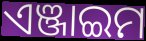
ଏଞ୍ଜାଇମ